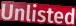
Unlisted